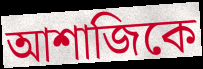
আশাজিকে